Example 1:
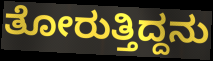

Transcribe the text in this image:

ತೋರುತ್ತಿದ್ದನು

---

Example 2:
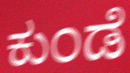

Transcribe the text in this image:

ಕುಂಡೆ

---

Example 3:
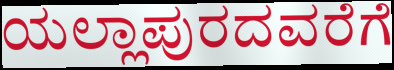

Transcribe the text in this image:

ಯಲ್ಲಾಪುರದವರೆಗೆ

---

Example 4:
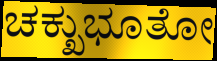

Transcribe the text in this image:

ಚಕ್ಖುಭೂತೋ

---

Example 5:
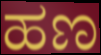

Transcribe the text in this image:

ಹಣ